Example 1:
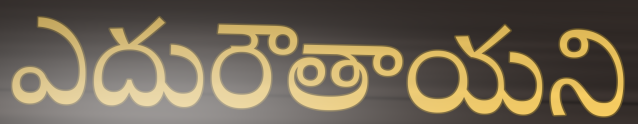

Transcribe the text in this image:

ఎదురౌతాయని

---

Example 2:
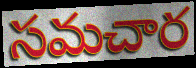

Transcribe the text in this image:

సమచార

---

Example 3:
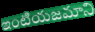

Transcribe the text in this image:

ఇంటియజమాని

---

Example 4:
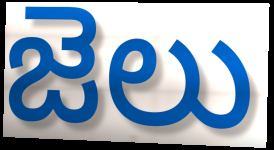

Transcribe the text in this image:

జెలు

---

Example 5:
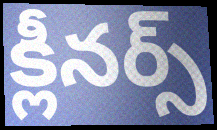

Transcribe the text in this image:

క్లీనర్స్